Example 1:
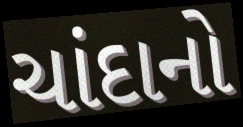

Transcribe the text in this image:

ચાંદાનો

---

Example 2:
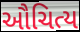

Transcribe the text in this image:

ઔચિત્ય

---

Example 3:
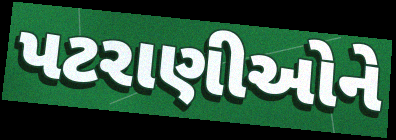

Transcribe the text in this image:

પટરાણીઓને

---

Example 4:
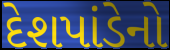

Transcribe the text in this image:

દેશપાંડેનો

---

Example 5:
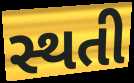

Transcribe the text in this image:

સ્થતી